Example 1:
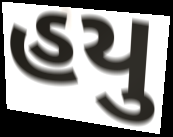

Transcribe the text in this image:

હયુ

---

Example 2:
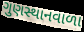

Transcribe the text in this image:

ગુણસ્થાનવાળા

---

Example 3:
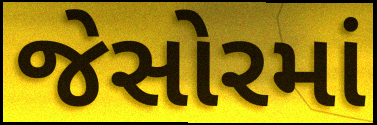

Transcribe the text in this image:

જેસોરમાં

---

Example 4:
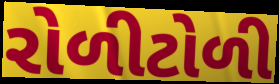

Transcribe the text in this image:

રોળીટોળી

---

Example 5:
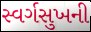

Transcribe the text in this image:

સ્વર્ગસુખની